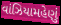
વાંઝિયામહેણું